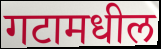
गटामधील